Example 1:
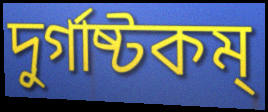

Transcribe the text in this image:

দুর্গাষ্টকম্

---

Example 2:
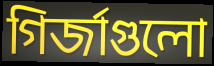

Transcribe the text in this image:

গির্জাগুলো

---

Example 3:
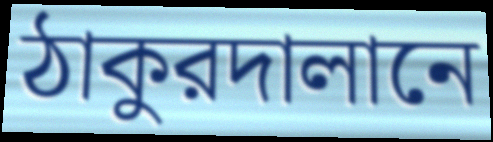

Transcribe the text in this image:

ঠাকুরদালানে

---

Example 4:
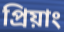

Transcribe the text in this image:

প্রিয়াং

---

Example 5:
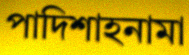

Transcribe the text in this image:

পাদিশাহনামা